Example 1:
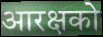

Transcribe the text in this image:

आरक्षको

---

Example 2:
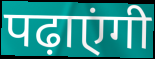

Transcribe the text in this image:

पढ़ाएंगी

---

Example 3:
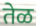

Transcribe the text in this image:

तेळ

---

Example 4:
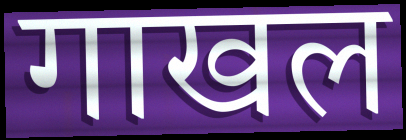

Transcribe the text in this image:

गाखल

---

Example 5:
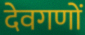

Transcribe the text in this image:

देवगणों